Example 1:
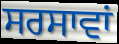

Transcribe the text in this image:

ਸਰਸਾਵਾਂ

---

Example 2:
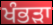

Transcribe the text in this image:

ਖੰਭੜਾ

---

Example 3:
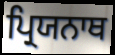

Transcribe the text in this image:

ਪ੍ਰਿਯਨਾਥ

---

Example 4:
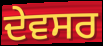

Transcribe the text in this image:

ਦੇਵਸਰ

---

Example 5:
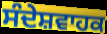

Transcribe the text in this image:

ਸੰਦੇਸ਼ਵਾਹਕ